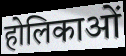
होलिकाओं